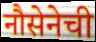
नौसेनेची